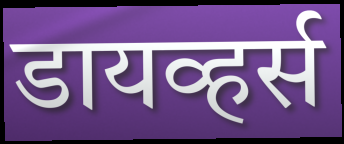
डायव्हर्स